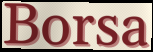
Borsa